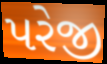
પરેજી